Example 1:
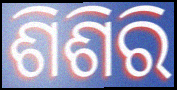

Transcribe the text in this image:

ଶିଶିରି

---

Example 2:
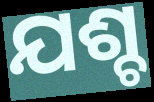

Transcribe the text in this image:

ଯଶ୍ଚ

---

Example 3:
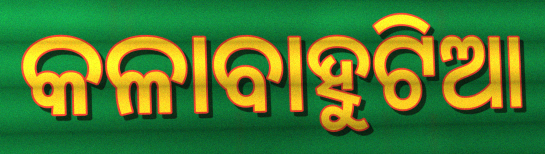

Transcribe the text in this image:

କଳାବାହୁଟିଆ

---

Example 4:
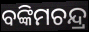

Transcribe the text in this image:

ବଙ୍କିମଚନ୍ଦ୍ର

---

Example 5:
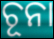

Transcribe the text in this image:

ଚୂନା